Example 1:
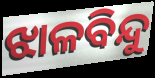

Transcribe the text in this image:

ଝାଳବିନ୍ଦୁ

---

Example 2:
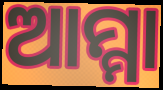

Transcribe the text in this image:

ଆମ୍ମା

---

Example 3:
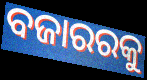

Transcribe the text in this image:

ବଜାରରକୁ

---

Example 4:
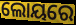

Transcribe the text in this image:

ଲୋୟରେ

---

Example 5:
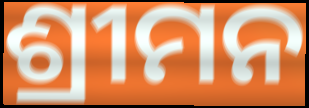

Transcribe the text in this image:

ଶ୍ରୀମନ